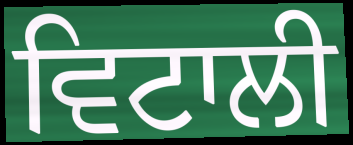
ਵਿਟਾਲੀ